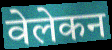
वेलेकन